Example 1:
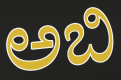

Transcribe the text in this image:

ಅಬಿ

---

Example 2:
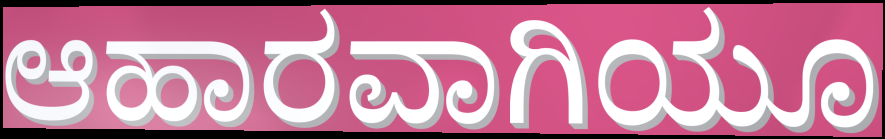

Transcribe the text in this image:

ಆಹಾರವಾಗಿಯೂ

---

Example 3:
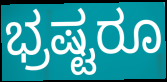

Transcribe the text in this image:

ಭ್ರಷ್ಟರೂ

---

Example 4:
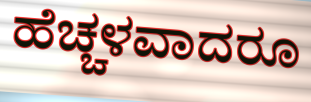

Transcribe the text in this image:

ಹೆಚ್ಚಳವಾದರೂ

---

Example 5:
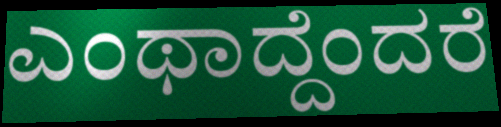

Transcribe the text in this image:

ಎಂಥಾದ್ದೆಂದರೆ